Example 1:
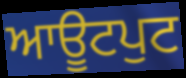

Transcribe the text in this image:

ਆਊਟਪੁਟ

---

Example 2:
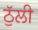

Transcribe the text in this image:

ਠੁੱਲੀ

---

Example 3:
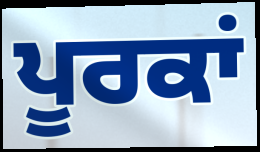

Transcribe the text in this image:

ਪੂਰਕਾਂ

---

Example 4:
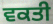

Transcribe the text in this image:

ਵਕਤੀ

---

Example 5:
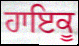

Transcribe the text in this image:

ਹਾਇਕੂ